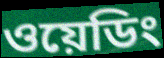
ওয়েডিং